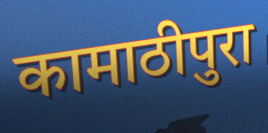
कामाठीपुरा